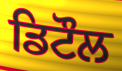
ਡਿਟੌਲ